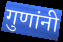
गुणांनी